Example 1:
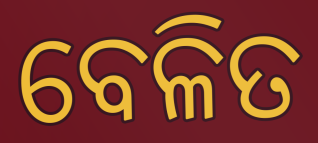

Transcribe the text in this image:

ବେଳିତ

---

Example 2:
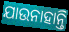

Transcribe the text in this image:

ଯାଉନାହାନ୍ତି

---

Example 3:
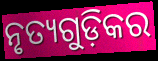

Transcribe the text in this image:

ନୃତ୍ୟଗୁଡ଼ିକର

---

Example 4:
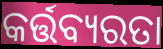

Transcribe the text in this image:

କର୍ତ୍ତବ୍ୟରତା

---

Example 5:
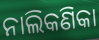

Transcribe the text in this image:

ନାଲିକଣିକା